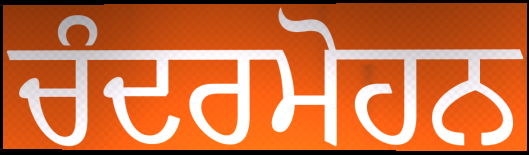
ਚੰਦਰਮੋਹਨ